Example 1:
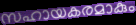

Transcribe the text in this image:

സഹായകരമാകും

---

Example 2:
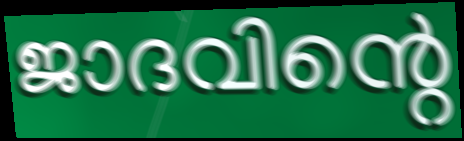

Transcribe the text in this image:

ജാദവിന്റെ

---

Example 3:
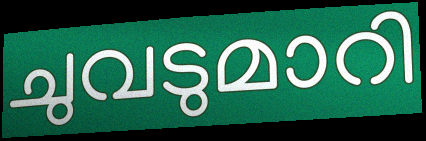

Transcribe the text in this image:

ചുവടുമാറി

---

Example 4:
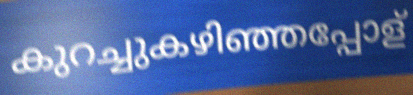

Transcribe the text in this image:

കുറച്ചുകഴിഞ്ഞപ്പോള്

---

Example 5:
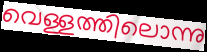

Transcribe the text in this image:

വെള്ളത്തിലൊന്നു